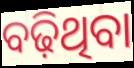
ବଢ଼ିଥିବା